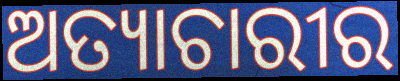
ଅତ୍ୟାଚାରୀର